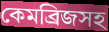
কেমব্রিজসহ